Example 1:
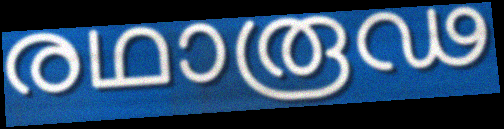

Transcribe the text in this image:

രഥാരൂഢ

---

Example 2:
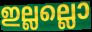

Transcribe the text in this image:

ഇല്ലല്ലൊ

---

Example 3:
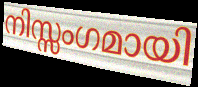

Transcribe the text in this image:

നിസ്സംഗമായി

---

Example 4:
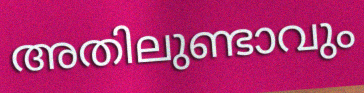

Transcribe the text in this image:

അതിലുണ്ടാവും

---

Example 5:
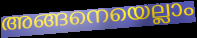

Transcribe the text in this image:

അങ്ങനെയെല്ലാം